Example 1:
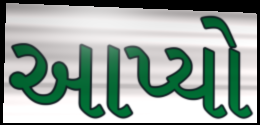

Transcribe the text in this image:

આપ્યો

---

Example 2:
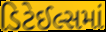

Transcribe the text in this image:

ડિટેઈલ્સમાં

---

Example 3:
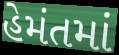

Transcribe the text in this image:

હેમંતમાં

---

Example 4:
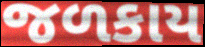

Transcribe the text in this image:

જળકાય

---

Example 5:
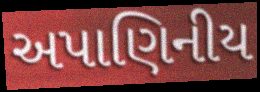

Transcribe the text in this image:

અપાણિનીય